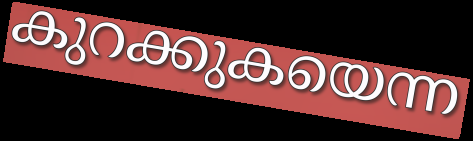
കുറക്കുകയെന്ന